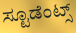
ಸ್ಟೂಡೆಂಟ್ಸ್